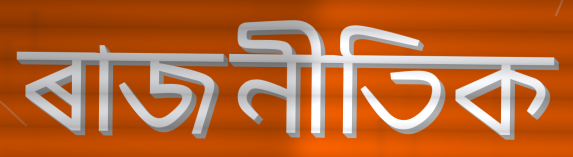
ৰাজনীতিক